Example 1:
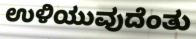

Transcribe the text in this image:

ಉಳಿಯುವುದೆಂತು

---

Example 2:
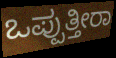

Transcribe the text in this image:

ಒಪ್ಪುತ್ತೀರಾ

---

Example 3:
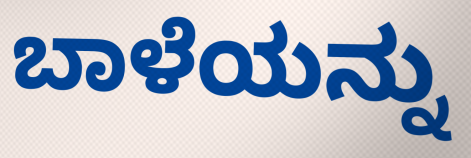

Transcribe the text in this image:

ಬಾಳೆಯನ್ನು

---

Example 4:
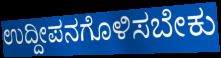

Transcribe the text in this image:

ಉದ್ದೀಪನಗೊಳಿಸಬೇಕು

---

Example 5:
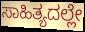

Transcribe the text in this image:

ಸಾಹಿತ್ಯದಲ್ಲೇ